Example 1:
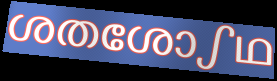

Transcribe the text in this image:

ശതശോഽഥ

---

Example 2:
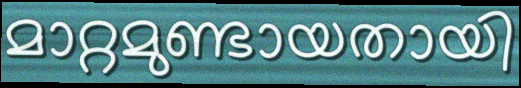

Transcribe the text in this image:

മാറ്റമുണ്ടായതായി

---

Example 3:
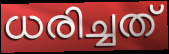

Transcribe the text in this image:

ധരിച്ചത്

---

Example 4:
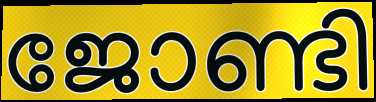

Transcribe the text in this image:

ജോണ്ടി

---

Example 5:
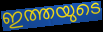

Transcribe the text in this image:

ഇത്തയുടെ